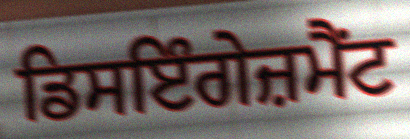
ਡਿਸਇੰਗੇਜ਼ਮੈਂਟ